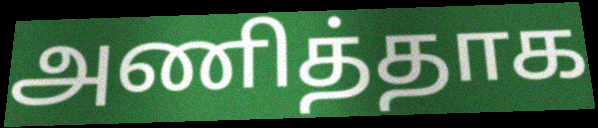
அணித்தாக